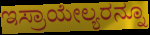
ಇಸ್ರಾಯೇಲ್ಯರನ್ನೂ